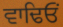
ਵਾਢਿਓਂ